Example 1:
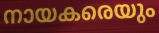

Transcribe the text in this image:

നായകരെയും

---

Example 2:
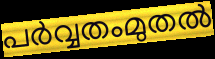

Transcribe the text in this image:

പർവ്വതംമുതൽ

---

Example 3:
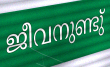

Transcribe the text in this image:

ജീവനുണ്ടു്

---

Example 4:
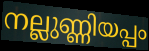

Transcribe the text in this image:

നല്ലുണ്ണിയപ്പം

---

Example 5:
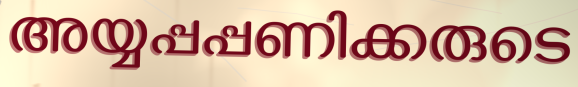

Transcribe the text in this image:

അയ്യപ്പപ്പണിക്കരുടെ